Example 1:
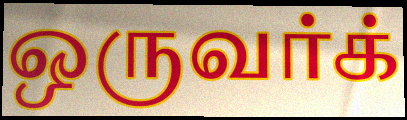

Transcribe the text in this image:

ஒருவர்க்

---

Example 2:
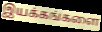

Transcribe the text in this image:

இயக்கங்களை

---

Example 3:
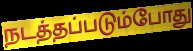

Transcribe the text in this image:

நடத்தப்படும்போது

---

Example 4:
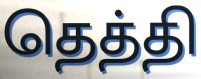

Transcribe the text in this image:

தெத்தி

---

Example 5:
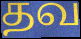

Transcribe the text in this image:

தவ